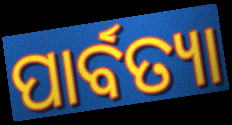
ପାର୍ବତ୍ୟା